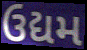
ઉદ્યમ